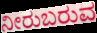
ನೀರುಬರುವ